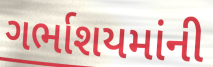
ગર્ભાશયમાંની